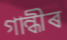
গান্ধীৰ